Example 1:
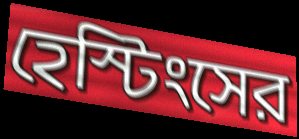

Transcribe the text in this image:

হেস্টিংসের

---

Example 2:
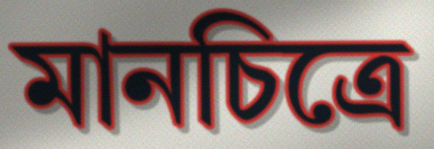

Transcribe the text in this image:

মানচিত্রে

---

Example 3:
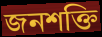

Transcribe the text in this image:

জনশক্তি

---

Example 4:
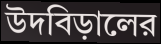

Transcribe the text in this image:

উদবিড়ালের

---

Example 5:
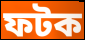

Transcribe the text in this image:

ফটক